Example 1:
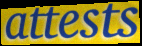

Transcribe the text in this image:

attests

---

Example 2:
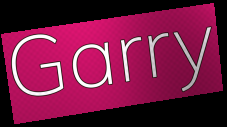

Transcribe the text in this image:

Garry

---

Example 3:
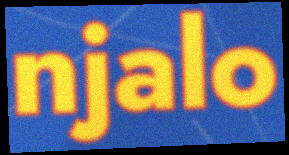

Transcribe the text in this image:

njalo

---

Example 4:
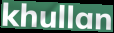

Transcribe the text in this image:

khullan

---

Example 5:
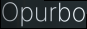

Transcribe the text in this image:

Opurbo